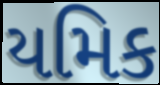
યમિક